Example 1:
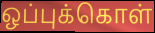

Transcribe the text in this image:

ஒப்புக்கொள்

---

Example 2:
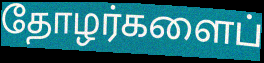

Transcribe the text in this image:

தோழர்களைப்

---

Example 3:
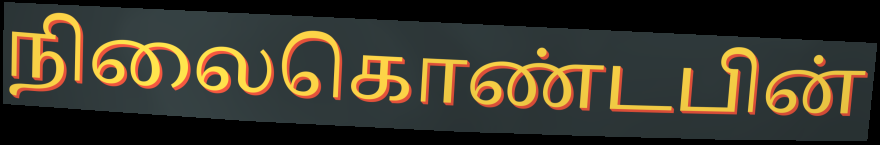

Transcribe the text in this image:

நிலைகொண்டபின்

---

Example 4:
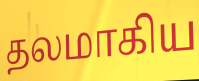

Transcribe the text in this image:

தலமாகிய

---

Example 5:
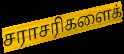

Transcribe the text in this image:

சராசரிகளைக்